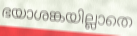
ഭയാശങ്കയില്ലാതെ